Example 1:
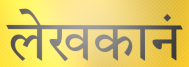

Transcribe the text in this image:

लेखकानं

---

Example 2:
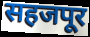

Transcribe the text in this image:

सहजपूर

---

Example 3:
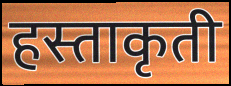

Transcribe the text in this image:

हस्ताकृती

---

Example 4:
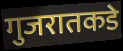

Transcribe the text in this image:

गुजरातकडे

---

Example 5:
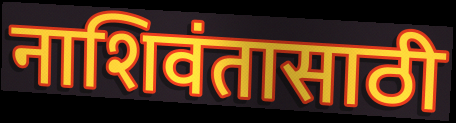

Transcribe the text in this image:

नाशिवंतासाठी